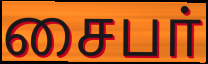
சைபர்